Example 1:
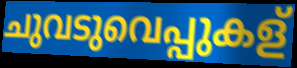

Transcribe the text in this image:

ചുവടുവെപ്പുകള്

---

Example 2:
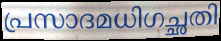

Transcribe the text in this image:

പ്രസാദമധിഗച്ഛതി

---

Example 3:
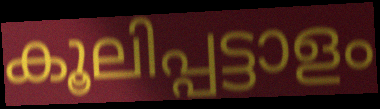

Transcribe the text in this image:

കൂലിപ്പട്ടാളം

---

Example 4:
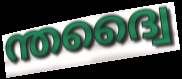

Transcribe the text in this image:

ന്തദ്വൈ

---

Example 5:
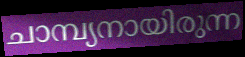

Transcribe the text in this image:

ചാമ്പ്യനായിരുന്ന